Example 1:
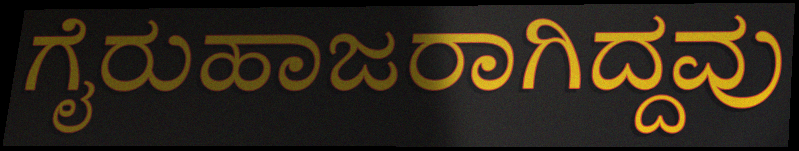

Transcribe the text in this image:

ಗೈರುಹಾಜರಾಗಿದ್ದವು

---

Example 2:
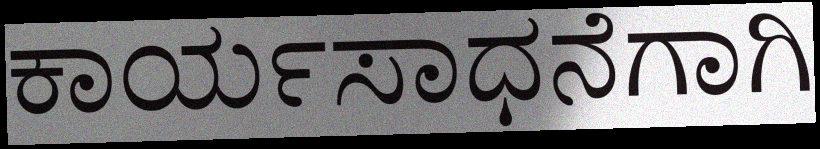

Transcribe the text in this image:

ಕಾರ್ಯಸಾಧನೆಗಾಗಿ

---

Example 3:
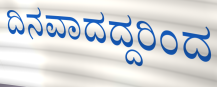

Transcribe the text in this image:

ದಿನವಾದದ್ದರಿಂದ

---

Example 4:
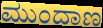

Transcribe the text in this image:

ಮುಂದಾಣ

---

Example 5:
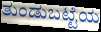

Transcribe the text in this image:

ತುಂಡುಬಟ್ಟೆಯ